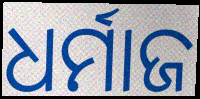
ଧର୍ମାଜ